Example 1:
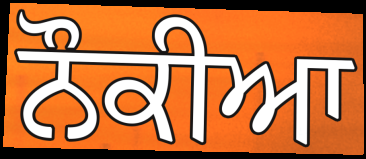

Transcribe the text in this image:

ਨੌਕੀਆ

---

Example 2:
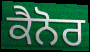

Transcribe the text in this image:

ਕੈਨੋਰ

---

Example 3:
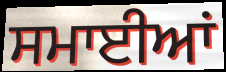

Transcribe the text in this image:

ਸਮਾਈਆਂ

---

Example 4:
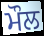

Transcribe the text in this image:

ਮੌਲ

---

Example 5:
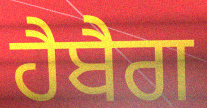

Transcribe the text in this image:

ਹੈਬੈਗ